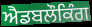
ਐਡਬਲੌਕਿੰਗ